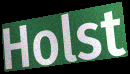
Holst